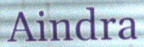
Aindra